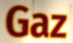
Gaz